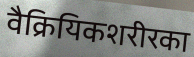
वैक्रियिकशरीरका